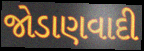
જોડાણવાદી